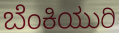
ಬೆಂಕಿಯುರಿ